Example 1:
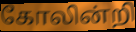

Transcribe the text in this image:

கோலின்றி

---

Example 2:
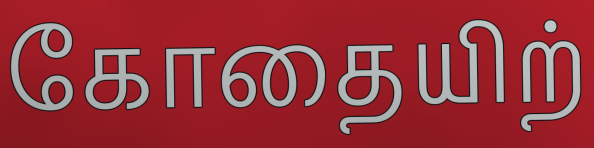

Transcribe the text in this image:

கோதையிற்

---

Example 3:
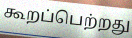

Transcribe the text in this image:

கூறப்பெற்றது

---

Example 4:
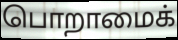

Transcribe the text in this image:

பொறாமைக்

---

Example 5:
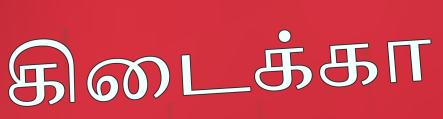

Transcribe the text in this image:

கிடைக்கா